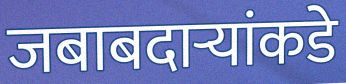
जबाबदाऱ्यांकडे